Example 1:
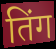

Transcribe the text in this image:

तिंग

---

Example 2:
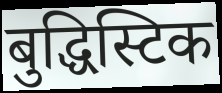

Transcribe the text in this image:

बुद्धिस्टिक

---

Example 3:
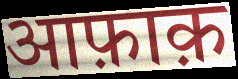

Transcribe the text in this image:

आफ़ाक़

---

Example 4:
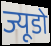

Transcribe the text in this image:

ज्यूडो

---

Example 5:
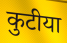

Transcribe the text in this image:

कुटीया